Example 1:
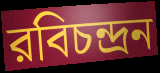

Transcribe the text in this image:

রবিচন্দ্রন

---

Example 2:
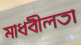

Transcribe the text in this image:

মাধবীলতা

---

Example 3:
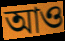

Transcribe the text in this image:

আও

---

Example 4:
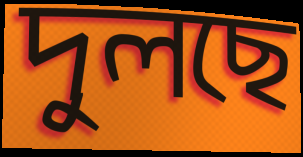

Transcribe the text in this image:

দুলছে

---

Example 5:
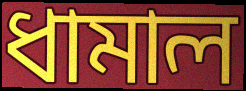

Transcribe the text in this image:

ধামাল